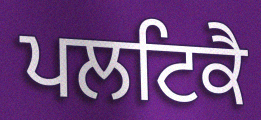
ਪਲਟਿਕੈ